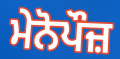
ਮੇਨੋਪੌਜ਼